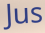
Jus